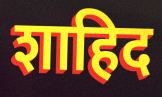
शाहिद